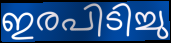
ഇരപിടിച്ചു